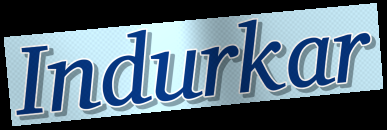
Indurkar